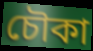
চৌকা